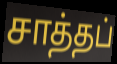
சாத்தப்